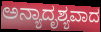
ಅನ್ಯಾದೃಶ್ಯವಾದ